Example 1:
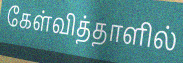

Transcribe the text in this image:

கேள்வித்தாளில்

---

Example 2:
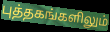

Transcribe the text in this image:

புத்தகங்களிலும்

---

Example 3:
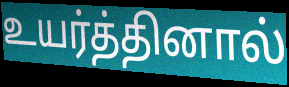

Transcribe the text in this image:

உயர்த்தினால்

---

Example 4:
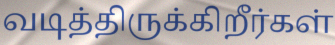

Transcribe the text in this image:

வடித்திருக்கிறீர்கள்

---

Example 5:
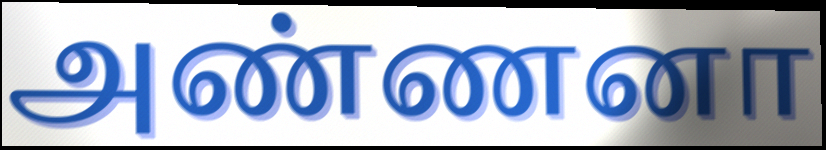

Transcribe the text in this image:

அண்ணனா